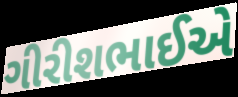
ગીરીશભાઈએ